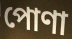
পোণা